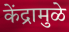
केंद्रामुळे